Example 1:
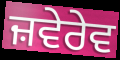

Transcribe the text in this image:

ਜ਼ਵੇਰੇਵ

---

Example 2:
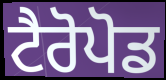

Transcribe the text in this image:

ਟੈਰੋਪੋਡ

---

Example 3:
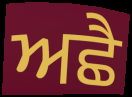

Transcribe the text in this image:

ਅਛੈ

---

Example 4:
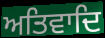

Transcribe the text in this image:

ਅਤਿਵਾਦਿ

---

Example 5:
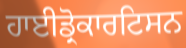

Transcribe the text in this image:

ਹਾਈਡ੍ਰੋਕਾਰਟਿਸਨ